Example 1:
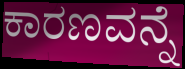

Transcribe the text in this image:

ಕಾರಣವನ್ನೆ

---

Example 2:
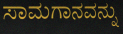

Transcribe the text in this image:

ಸಾಮಗಾನವನ್ನು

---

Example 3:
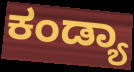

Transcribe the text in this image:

ಕಂಡ್ಯಾ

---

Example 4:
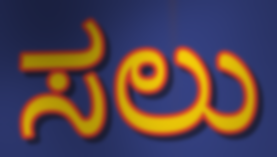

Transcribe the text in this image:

ಸಲು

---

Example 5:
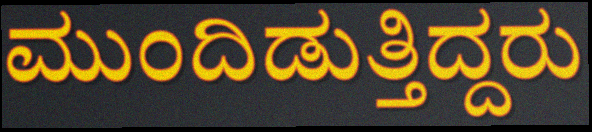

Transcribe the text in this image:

ಮುಂದಿಡುತ್ತಿದ್ದರು